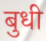
बुधी